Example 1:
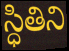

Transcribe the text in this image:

స్ధితిని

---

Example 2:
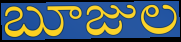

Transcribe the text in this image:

బూజుల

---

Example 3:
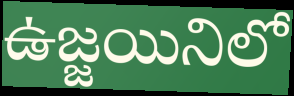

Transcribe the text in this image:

ఉజ్జయినిలో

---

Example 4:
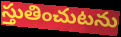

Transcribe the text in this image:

స్తుతించుటను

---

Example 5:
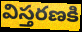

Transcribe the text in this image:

విస్తరణకి